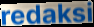
redaksi